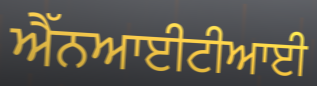
ਐੱਨਆਈਟੀਆਈ